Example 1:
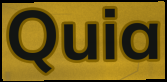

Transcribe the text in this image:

Quia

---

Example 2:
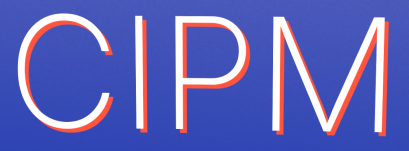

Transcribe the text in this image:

CIPM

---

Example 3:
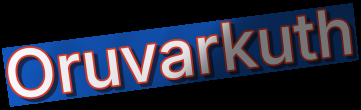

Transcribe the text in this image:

Oruvarkuth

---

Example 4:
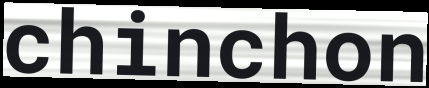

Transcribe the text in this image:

chinchon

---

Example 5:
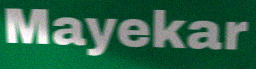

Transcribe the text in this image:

Mayekar